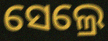
ସେଲ୍ରେ